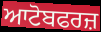
ਆਟੋਬਫਰਜ਼